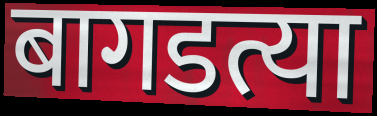
बागडत्या